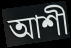
আশী